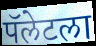
पॅलेटला